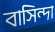
বাসিন্দা